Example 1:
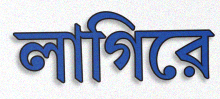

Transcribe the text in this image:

লাগিরে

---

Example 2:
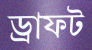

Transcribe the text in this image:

ড্রাফট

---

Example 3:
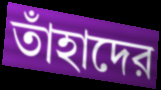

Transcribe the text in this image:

তাঁহাদের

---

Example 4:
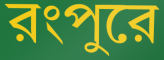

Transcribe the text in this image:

রংপুরে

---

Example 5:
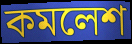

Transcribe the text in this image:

কমলেশ